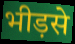
भीड़से